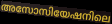
അസോസിയേഷനിലെ